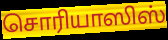
சொரியாஸிஸ்